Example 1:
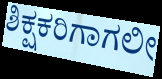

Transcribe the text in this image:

ಶಿಕ್ಷಕರಿಗಾಗಲೀ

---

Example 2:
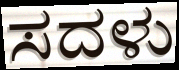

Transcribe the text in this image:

ಸದಳು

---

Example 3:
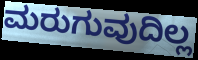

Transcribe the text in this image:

ಮರುಗುವುದಿಲ್ಲ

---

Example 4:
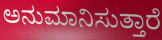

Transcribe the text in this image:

ಅನುಮಾನಿಸುತ್ತಾರೆ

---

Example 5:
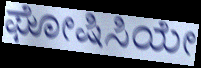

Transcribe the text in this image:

ಘೋಷಿಸಿಯೇ